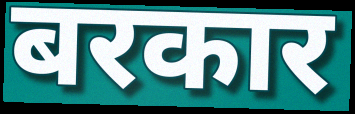
बरकार